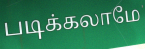
படிக்கலாமே